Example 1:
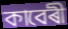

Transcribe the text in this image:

কাবেৰী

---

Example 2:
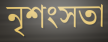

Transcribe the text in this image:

নৃশংসতা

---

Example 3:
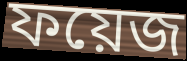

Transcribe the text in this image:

ফয়েজ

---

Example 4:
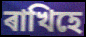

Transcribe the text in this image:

ৰাখিহে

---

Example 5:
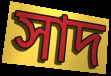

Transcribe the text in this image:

সাদ